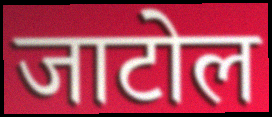
जाटोल